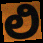
ಲಿ